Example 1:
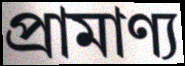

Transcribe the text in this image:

প্ৰামাণ্য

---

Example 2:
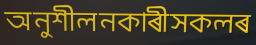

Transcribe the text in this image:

অনুশীলনকাৰীসকলৰ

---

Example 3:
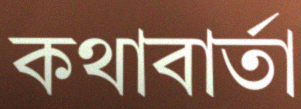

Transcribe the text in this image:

কথাবাৰ্তা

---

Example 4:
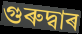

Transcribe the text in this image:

গুৰুদ্বাৰ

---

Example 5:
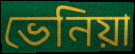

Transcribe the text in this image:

ভেনিয়া